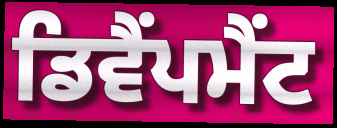
ਡਿਵੈਂਪਮੈਂਟ